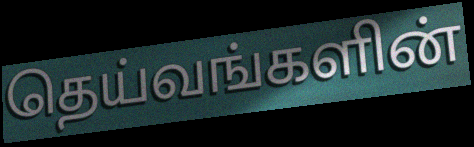
தெய்வங்களின்